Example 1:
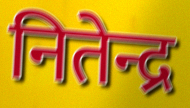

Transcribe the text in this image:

नितेन्द्र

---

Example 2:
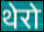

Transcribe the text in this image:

थेरो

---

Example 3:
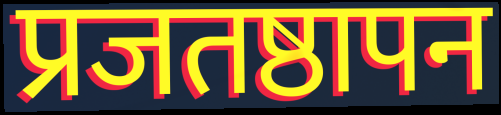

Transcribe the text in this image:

प्रजतष्ठापन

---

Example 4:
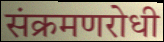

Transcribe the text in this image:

संक्रमणरोधी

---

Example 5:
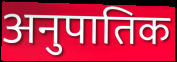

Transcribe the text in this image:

अनुपातिक